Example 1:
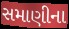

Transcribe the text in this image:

સમાણીના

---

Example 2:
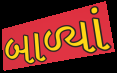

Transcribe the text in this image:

બાળ્યાં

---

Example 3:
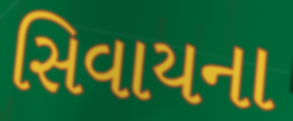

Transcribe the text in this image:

સિવાયના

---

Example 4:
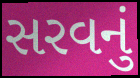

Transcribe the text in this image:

સરવનું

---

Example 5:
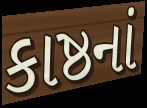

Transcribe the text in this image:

કાષ્ઠનાં